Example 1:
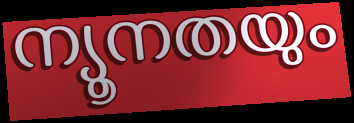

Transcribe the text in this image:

ന്യൂനതയും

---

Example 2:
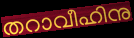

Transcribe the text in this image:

തറാവീഹിനു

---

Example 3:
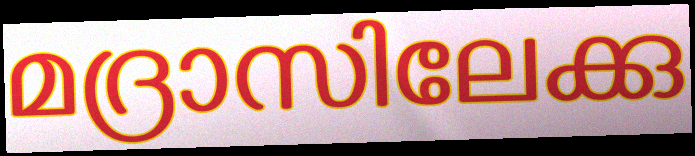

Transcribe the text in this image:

മദ്രാസിലേക്കു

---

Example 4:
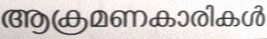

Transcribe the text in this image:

ആക്രമണകാരികൾ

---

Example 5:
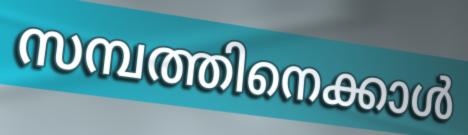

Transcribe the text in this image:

സമ്പത്തിനെക്കാൾ